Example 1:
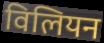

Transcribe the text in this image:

विलियन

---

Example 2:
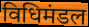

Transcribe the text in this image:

विधिमंडल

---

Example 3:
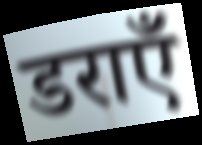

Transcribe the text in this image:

डराएँ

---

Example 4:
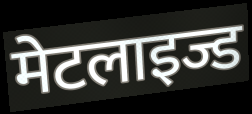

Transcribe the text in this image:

मेटलाइज्ड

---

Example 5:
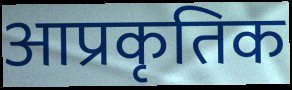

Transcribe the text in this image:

आप्रकृतिक